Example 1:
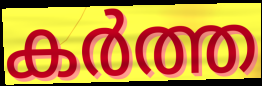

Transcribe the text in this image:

കർത്ത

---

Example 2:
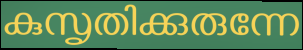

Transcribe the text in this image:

കുസൃതിക്കുരുന്നേ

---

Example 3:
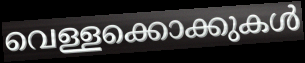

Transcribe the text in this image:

വെള്ളക്കൊക്കുകൾ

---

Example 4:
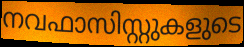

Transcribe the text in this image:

നവഫാസിസ്റ്റുകളുടെ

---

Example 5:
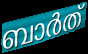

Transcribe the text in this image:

ബാർത്